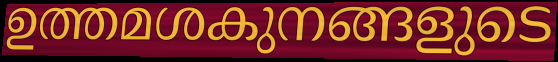
ഉത്തമശകുനങ്ങളുടെ